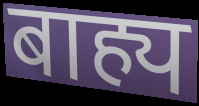
बाह्य